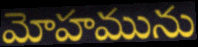
మోహమును